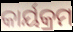
କାର୍ୟକ୍ରମ